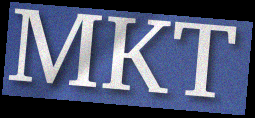
MKT